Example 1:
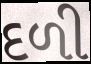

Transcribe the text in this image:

દળી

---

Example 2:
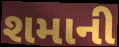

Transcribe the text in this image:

શમાની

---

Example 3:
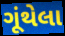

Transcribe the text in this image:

ગૂંથેલા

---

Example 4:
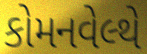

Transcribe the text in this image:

કોમનવેલ્થે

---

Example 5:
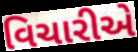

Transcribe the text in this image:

વિચારીએ